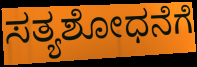
ಸತ್ಯಶೋಧನೆಗೆ